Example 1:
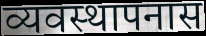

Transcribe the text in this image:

व्यवस्थापनास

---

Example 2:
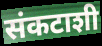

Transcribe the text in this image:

संकटाशी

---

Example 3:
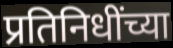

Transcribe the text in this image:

प्रतिनिधींच्या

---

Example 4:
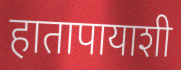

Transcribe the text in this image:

हातापायाशी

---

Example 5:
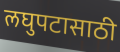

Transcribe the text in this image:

लघुपटासाठी